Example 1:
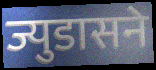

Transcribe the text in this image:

ज्युडासने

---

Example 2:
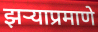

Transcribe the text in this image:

झऱ्याप्रमाणे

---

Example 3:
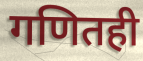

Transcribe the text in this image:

गणितही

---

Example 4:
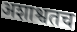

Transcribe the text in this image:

अशाश्वतच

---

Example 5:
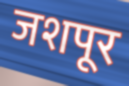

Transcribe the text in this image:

जशपूर